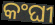
କଂଘୀ